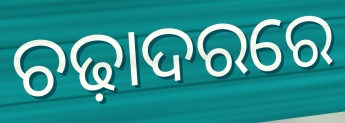
ଚଢ଼ାଦରରେ